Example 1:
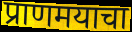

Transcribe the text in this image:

प्राणमयाचा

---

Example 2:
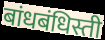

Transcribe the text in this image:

बांधबंधिस्ती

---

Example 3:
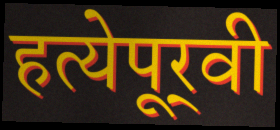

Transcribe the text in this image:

हत्येपूर्वी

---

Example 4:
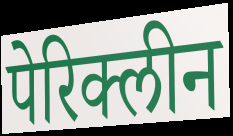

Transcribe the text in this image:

पेरिक्लीन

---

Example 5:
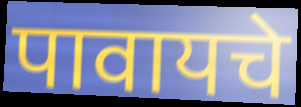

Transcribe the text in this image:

पावायचे